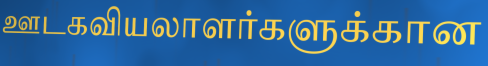
ஊடகவியலாளர்களுக்கான